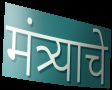
मंत्र्याचे